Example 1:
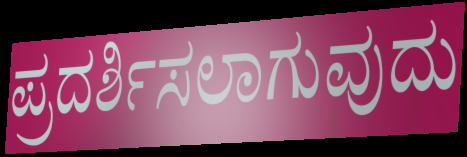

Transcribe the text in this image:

ಪ್ರದರ್ಶಿಸಲಾಗುವುದು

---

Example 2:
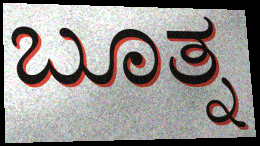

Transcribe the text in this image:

ಬೂತ್ನ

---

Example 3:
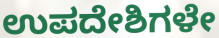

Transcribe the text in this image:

ಉಪದೇಶಿಗಳೇ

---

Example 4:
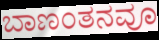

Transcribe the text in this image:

ಬಾಣಂತನವೂ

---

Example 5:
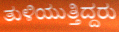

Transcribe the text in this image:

ತುಳಿಯುತ್ತಿದ್ದರು